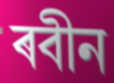
ৰবীন